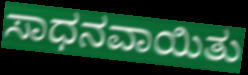
ಸಾಧನವಾಯಿತು